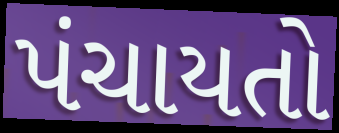
પંચાયતો